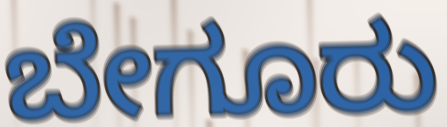
ಬೇಗೂರು